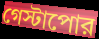
গেস্টাপোর